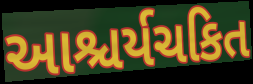
આશ્ચર્યચકિત